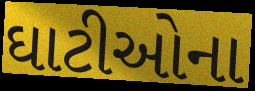
ઘાટીઓના